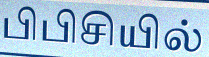
பிபிசியில்